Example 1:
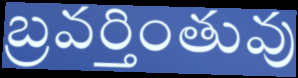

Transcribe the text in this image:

బ్రవర్తింతువు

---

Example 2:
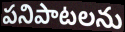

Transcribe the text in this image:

పనిపాటలను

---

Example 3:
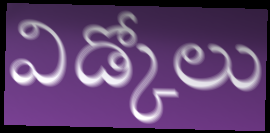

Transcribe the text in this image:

విడ్కోలు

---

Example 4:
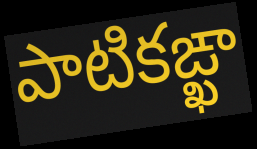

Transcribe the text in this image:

పాటికఙ్ఖా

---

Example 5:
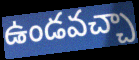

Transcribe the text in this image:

ఉండవచ్చా